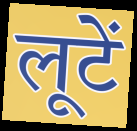
लूटें